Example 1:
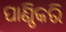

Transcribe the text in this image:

ପାଣ୍ଠିକରି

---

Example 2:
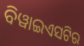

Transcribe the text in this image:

ବିୱାଇଏସଟିର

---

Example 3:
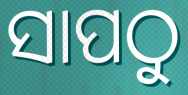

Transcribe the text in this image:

ସାପଠୁ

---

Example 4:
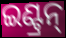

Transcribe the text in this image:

ଇଣ୍ଟ୍ରନ୍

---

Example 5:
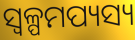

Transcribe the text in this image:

ସ୍ୱଳ୍ପମପ୍ୟସ୍ୟ